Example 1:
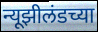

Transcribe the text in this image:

न्यूझीलंडच्या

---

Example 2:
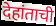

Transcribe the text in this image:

देहांताची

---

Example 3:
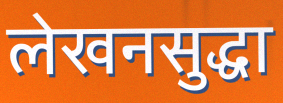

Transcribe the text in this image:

लेखनसुद्धा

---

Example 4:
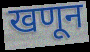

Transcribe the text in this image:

खणून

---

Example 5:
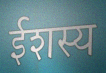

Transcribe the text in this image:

ईशस्य